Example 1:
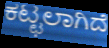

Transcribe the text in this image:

ಕಟ್ಟಲಾಗಿದೆ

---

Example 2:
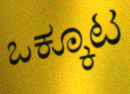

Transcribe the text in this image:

ಒಕ್ಕೂಟ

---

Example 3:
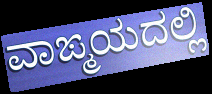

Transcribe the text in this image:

ವಾಙ್ಮಯದಲ್ಲಿ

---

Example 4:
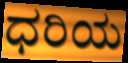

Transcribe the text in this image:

ಧರಿಯ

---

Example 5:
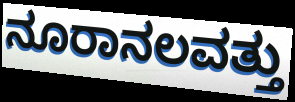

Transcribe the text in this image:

ನೂರಾನಲವತ್ತು